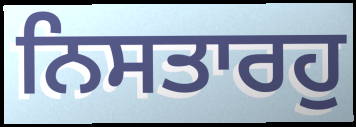
ਨਿਸਤਾਰਹੁ